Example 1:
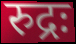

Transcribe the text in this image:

रुद्रः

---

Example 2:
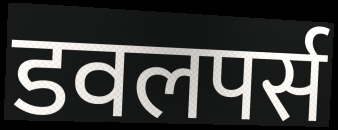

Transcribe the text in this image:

डवलपर्स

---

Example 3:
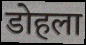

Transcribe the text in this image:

डोहला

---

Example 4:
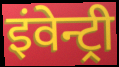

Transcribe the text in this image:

इंवेन्ट्री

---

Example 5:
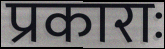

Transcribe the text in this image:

प्रकाराः